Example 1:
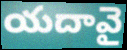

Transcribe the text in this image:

యదావై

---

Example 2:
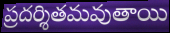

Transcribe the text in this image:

ప్రదర్శితమవుతాయి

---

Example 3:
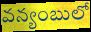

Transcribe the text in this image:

వన్యంబులో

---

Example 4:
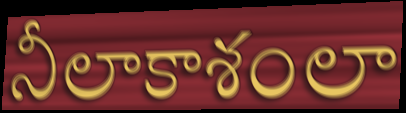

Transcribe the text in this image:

నీలాకాశంలా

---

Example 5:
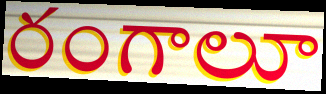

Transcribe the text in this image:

రంగాలూ